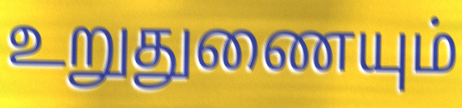
உறுதுணையும்